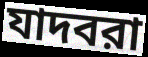
যাদবরা